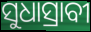
ସୁଧାସ୍ରାବୀ